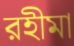
রহীমা